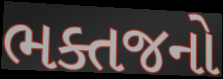
ભક્તજનો